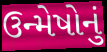
ઉન્મેષોનું